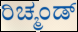
ರಿಚ್ಮಂಡ್